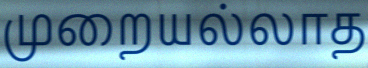
முறையல்லாத